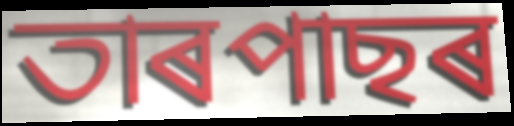
তাৰপাছৰ